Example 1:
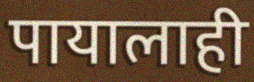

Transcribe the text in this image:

पायालाही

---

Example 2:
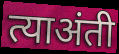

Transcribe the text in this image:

त्याअंती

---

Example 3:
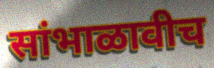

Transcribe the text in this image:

सांभाळावीच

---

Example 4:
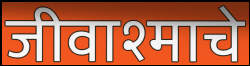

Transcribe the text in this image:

जीवाश्माचे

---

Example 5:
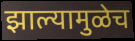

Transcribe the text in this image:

झाल्यामुळेच